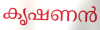
കൃഷണൻ